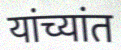
यांच्यांत